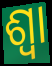
ଶ୍ୱା